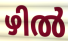
ഴിൽ